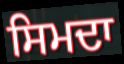
ਸਿਮਦਾ